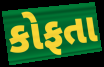
કોફતા